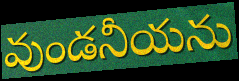
వుండనీయను